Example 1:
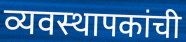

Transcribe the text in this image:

व्यवस्थापकांची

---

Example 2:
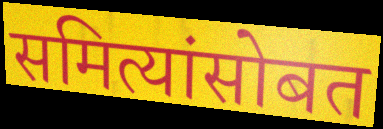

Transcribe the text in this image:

समित्यांसोबत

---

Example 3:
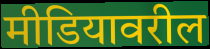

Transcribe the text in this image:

मीडियावरील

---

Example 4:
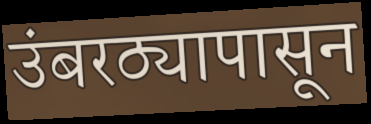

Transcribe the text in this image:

उंबरठ्यापासून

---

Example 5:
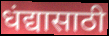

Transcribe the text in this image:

धंद्यासाठी